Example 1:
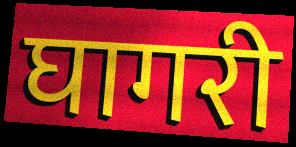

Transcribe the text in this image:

घागरी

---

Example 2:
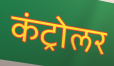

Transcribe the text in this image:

कंट्रोलर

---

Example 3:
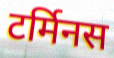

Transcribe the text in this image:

टर्मिनस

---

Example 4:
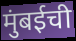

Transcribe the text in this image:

मुंबईची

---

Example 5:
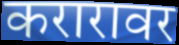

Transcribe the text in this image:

करारावर